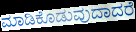
ಮಾಡಿಕೊಡುವುದಾದರೆ